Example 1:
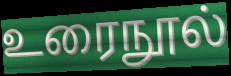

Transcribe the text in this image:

உரைநூல்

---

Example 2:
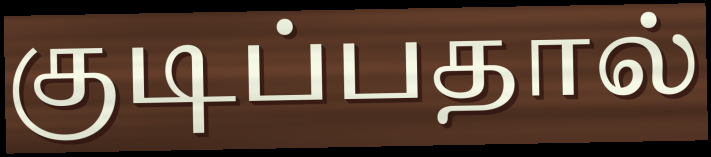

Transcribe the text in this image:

குடிப்பதால்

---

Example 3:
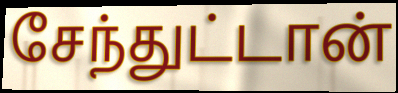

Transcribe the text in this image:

சேந்துட்டான்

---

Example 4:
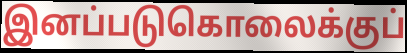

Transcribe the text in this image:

இனப்படுகொலைக்குப்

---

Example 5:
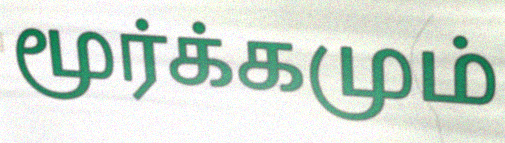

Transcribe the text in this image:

மூர்க்கமும்